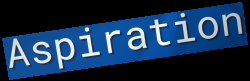
Aspiration